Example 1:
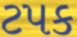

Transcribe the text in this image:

ટપક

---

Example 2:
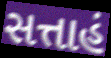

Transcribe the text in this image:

સત્તાહં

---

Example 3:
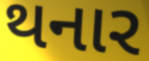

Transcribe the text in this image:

થનાર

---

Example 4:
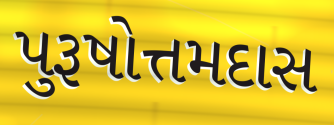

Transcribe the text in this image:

પુરૂષોત્તમદાસ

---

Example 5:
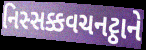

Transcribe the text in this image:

નિસ્સક્કવચનટ્ઠાને